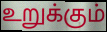
உறுக்கும்